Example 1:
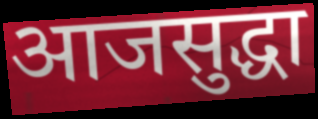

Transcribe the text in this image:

आजसुद्धा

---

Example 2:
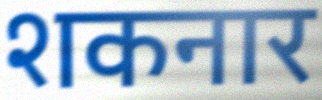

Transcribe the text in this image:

शकनार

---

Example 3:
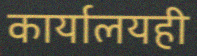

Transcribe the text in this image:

कार्यालयही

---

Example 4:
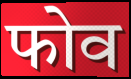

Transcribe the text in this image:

फोव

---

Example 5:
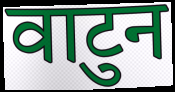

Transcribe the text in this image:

वाटुन